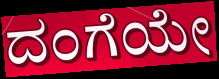
ದಂಗೆಯೇ